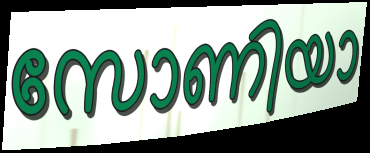
സോണിയാ